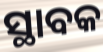
ସ୍ଥାବକ